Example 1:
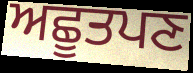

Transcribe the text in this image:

ਅਛੂਤਪਣ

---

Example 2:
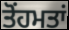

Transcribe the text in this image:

ਤੋਂਹਮਤਾਂ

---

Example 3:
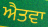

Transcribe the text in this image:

ਐਤਵਾ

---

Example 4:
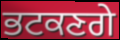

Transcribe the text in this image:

ਭਟਕਣਗੇ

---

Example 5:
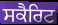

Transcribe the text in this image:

ਸਕੈਰਿਟ